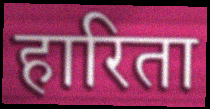
हारिता